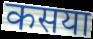
कसया